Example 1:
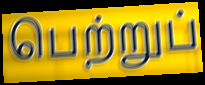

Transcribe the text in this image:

பெற்றுப்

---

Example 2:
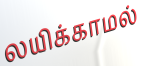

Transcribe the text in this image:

லயிக்காமல்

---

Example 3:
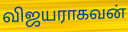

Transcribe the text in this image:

விஜயராகவன்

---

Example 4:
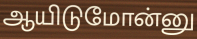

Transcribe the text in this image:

ஆயிடுமோன்னு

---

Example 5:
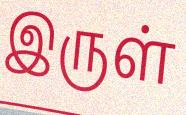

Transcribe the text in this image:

இருள்